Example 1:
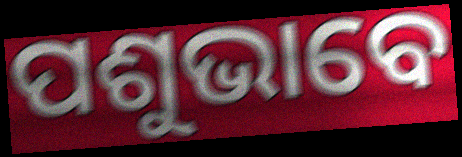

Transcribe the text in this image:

ପଶୁଭାବେ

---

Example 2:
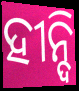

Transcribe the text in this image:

ହୀନ୍ଦି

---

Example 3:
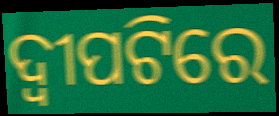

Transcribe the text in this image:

ଦ୍ୱୀପଟିରେ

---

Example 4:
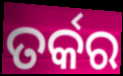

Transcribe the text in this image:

ତର୍କର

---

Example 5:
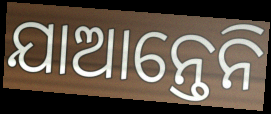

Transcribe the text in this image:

ଯାଆନ୍ତେନି